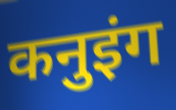
कनुइंग